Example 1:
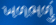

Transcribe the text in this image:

ખળભળું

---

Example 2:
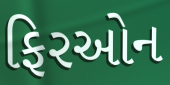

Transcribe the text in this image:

ફિરઓન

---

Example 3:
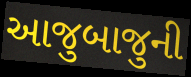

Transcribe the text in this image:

આજુબાજુની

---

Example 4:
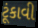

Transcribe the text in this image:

ટૂંકાવી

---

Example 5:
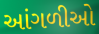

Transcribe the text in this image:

આંગળીઓ